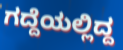
ಗದ್ದೆಯಲ್ಲಿದ್ದ